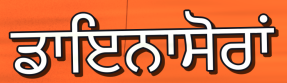
ਡਾਇਨਾਸੋਰਾਂ